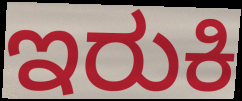
ಇರುಕಿ